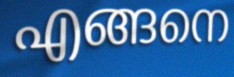
എങ്ങനെ